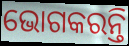
ଭୋଗକରନ୍ତି